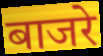
बाजरे